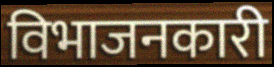
विभाजनकारी